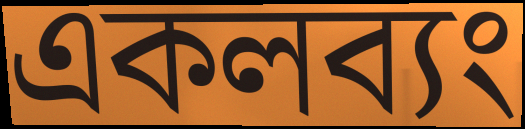
একলব্যং